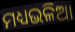
ମଧ୍ୟଭଳିଆ